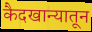
कैदखान्यातून